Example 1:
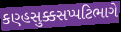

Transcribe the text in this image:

કણ્હસુક્કસપ્પટિભાગે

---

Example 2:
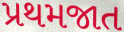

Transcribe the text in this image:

પ્રથમજાત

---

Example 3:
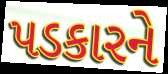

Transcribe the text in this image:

પડકારને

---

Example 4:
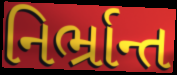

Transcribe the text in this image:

નિર્ભ્રાન્ત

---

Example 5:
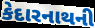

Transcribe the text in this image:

કેદારનાથની